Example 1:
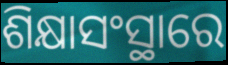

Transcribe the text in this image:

ଶିକ୍ଷାସଂସ୍ଥାରେ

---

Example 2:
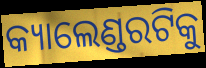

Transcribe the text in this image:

କ୍ୟାଲେଣ୍ଡରଟିକୁ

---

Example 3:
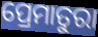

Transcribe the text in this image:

ପ୍ରେମାତୁରା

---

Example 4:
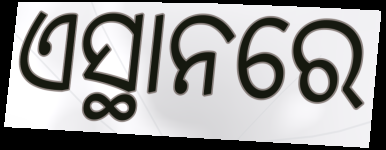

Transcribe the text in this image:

ଏସ୍ଥାନରେ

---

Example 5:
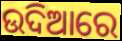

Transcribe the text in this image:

ଉଦିଆରେ